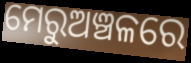
ମେରୁଅଞ୍ଚଳରେ